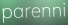
parenni